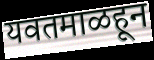
यवतमाळहून